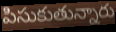
పిసుకుతున్నారు